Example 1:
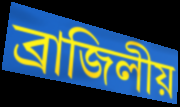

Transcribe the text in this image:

ব্রাজিলীয়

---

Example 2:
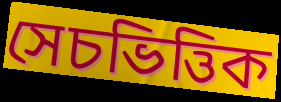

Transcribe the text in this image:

সেচভিত্তিক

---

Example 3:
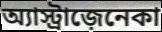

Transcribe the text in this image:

অ্যাস্ট্রাজ়েনেকা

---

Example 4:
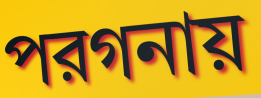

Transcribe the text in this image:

পরগনায়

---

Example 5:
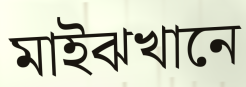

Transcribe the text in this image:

মাইঝখানে